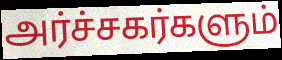
அர்ச்சகர்களும்